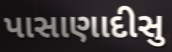
પાસાણાદીસુ